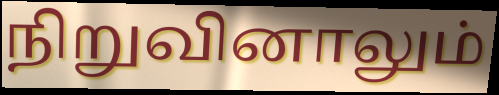
நிறுவினாலும்